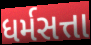
ધર્મસત્તા